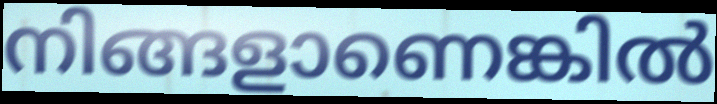
നിങ്ങളാണെങ്കിൽ